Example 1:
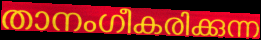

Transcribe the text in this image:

താനംഗീകരിക്കുന്ന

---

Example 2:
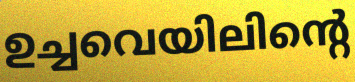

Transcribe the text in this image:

ഉച്ചവെയിലിന്റെ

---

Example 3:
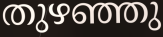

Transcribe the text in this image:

തുഴഞ്ഞു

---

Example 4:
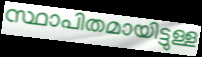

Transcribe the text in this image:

സ്ഥാപിതമായിട്ടുള്ള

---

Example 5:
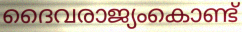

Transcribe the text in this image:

ദൈവരാജ്യംകൊണ്ട്